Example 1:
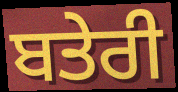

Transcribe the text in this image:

ਬਤੇਰੀ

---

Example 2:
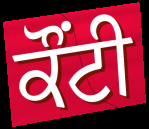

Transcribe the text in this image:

ਕੌਂਟੀ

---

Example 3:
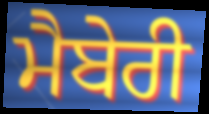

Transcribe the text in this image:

ਮੈਬੇਰੀ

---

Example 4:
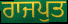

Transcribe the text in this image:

ਰਾਜਪੁਤ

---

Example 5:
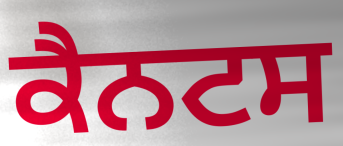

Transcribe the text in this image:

ਕੈਨਟਸ